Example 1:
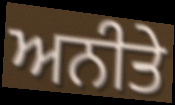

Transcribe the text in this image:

ਅਨੀਤੇ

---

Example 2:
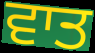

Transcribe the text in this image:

ਵਾਤ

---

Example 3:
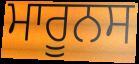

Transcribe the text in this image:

ਮਾਰੂਨਸ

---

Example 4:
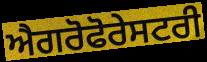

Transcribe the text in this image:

ਐਗਰੋਫੋਰੇਸਟਰੀ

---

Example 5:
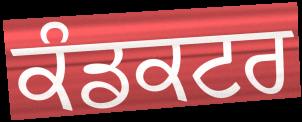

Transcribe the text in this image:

ਕੰਡਕਟਰ